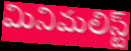
మినిమలిస్ట్